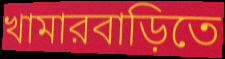
খামারবাড়িতে